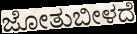
ಜೋತುಬೀಳದೆ